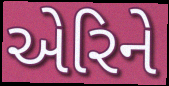
એરિને